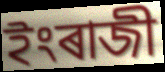
ইংৰাজী